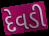
દેવડી